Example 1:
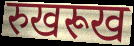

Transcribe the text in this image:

रुखरूख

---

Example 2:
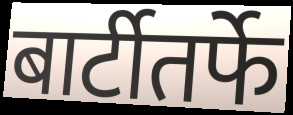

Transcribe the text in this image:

बार्टीतर्फे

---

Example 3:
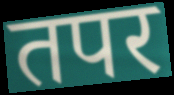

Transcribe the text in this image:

तपर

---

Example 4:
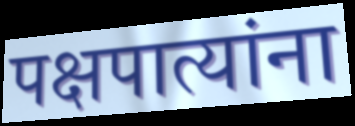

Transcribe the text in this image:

पक्षपात्यांना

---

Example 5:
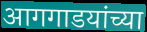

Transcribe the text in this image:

आगगाडयांच्या